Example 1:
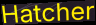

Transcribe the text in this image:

Hatcher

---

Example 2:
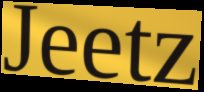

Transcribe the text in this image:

Jeetz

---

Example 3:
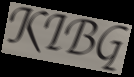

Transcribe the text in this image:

KIBG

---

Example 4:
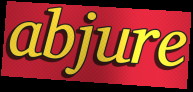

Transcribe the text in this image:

abjure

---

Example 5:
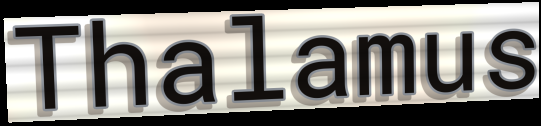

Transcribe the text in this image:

Thalamus